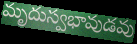
మృదుస్వభావుడవు